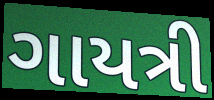
ગાયત્રી